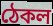
ঠেকল